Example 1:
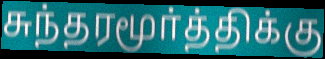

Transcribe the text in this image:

சுந்தரமூர்த்திக்கு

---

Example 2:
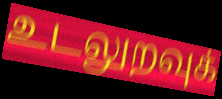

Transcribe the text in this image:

உடலுறவுக்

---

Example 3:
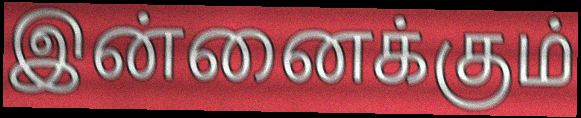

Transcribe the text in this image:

இன்னைக்கும்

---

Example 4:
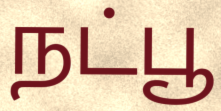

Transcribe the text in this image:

நட்பூ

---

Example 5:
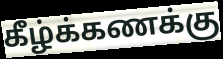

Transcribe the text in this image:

கீழ்க்கணக்கு